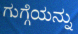
ಗುಗ್ಗೆಯನ್ನು